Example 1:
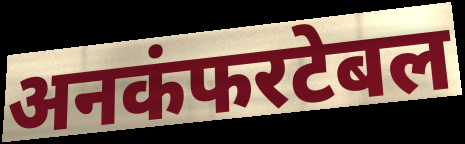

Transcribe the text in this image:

अनकंफरटेबल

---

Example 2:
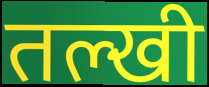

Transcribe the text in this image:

तल्‍खी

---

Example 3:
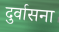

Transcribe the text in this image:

दुर्वासना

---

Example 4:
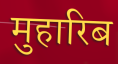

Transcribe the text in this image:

मुहारिब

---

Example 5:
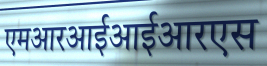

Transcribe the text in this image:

एमआरआईआईआरएस